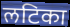
लटिका